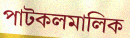
পাটকলমালিক